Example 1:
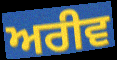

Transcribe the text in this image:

ਅਰੀਵ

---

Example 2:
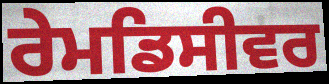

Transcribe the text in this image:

ਰੇਮਡਿਸੀਵਰ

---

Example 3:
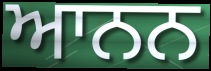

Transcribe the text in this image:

ਆਨਨ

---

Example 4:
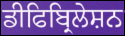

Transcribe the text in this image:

ਡੀਫਿਬ੍ਰਿਲੇਸ਼ਨ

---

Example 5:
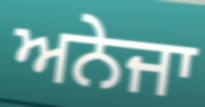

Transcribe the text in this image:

ਅਨੇਜਾ